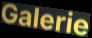
Galerie